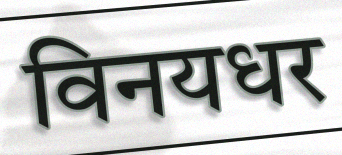
विनयधर